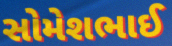
સોમેશભાઈ